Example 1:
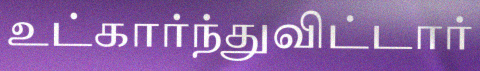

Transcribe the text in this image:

உட்கார்ந்துவிட்டார்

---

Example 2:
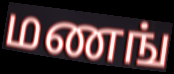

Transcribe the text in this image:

மணங்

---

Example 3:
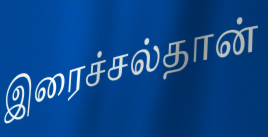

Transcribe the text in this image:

இரைச்சல்தான்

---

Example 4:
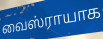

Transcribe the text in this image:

வைஸ்ராயாக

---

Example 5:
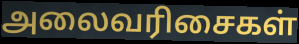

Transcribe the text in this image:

அலைவரிசைகள்